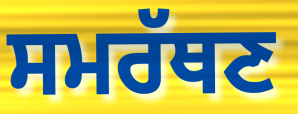
ਸਮਰੱਥਣ